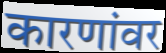
कारणांवर